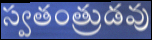
స్వతంత్రుడవు